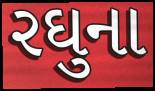
રઘુના